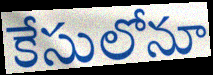
కేసులోనూ